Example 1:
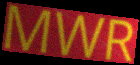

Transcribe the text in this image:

MWR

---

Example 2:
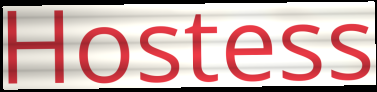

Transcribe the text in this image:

Hostess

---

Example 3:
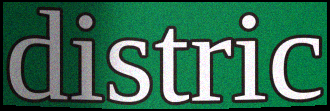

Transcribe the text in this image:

distric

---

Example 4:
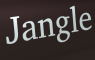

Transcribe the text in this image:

Jangle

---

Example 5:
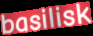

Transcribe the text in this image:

basilisk